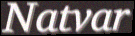
Natvar